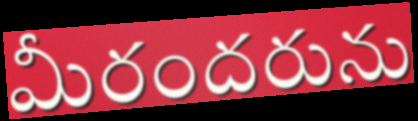
మీరందరును